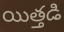
యిత్తడి